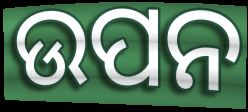
ଉପନ